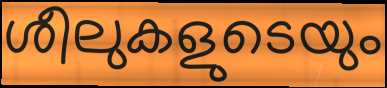
ശീലുകളുടെയും